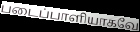
படைப்பாளியாகவே